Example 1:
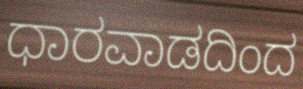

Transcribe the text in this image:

ಧಾರವಾಡದಿಂದ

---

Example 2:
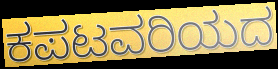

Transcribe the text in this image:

ಕಪಟವರಿಯದ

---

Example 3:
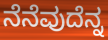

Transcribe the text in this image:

ನೆನೆವುದೆನ್ನ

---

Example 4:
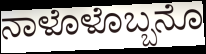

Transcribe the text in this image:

ನಾಳೊಳೊಬ್ಬನೊ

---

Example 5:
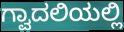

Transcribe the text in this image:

ಗ್ವಾದಲಿಯಲ್ಲಿ